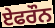
ਏਫਰੌਨ